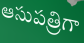
ఆసుపత్రిగా